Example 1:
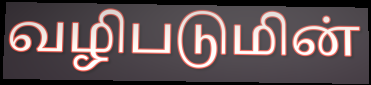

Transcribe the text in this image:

வழிபடுமின்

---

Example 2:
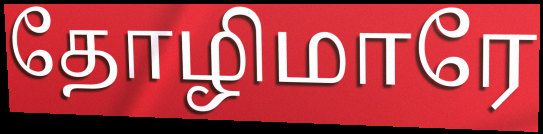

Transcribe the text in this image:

தோழிமாரே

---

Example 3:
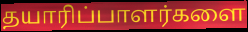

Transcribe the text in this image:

தயாரிப்பாளர்களை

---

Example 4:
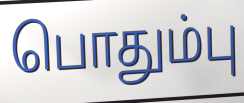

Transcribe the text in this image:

பொதும்பு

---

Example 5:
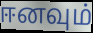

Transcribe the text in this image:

ஈனவும்